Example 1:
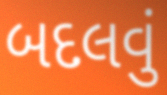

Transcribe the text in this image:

બદલવું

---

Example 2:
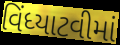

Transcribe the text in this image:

વિંધ્યાટવીમાં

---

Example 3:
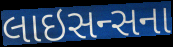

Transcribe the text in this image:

લાઇસન્સના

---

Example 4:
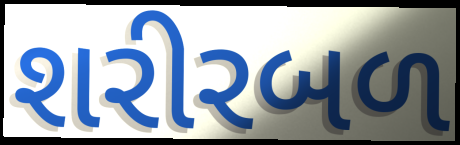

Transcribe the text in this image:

શરીરબળ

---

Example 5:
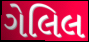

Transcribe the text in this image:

ગેલિલ